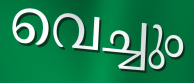
വെച്ചും